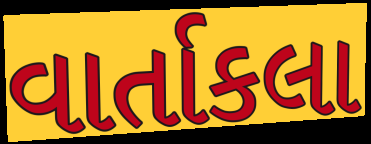
વાર્તાકલા